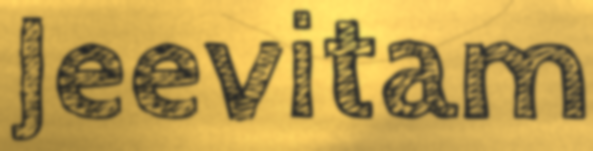
Jeevitam